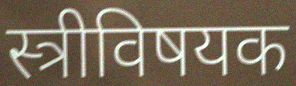
स्त्रीविषयक